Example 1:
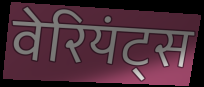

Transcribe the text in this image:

वेरियंट्स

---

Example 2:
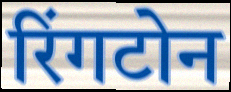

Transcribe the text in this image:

रिंगटोन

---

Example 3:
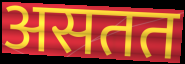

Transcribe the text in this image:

असतत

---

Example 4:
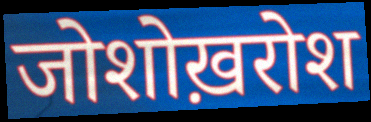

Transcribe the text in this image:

जोशोख़रोश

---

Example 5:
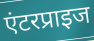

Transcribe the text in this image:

एंटरप्राइज